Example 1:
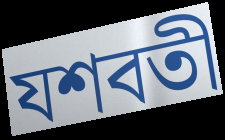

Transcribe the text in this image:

যশবতী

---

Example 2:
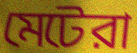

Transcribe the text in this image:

মেটেরা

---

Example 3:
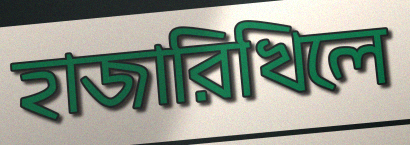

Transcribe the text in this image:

হাজারিখিলে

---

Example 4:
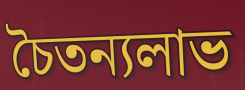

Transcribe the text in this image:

চৈতন্যলাভ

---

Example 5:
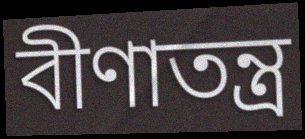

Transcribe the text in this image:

বীণাতন্ত্র